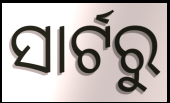
ସାର୍ଟରୁ